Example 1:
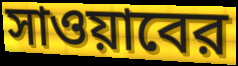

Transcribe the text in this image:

সাওয়াবের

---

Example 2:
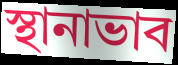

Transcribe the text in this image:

স্থানাভাব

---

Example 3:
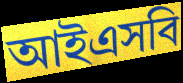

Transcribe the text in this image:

আইএসবি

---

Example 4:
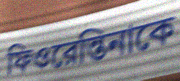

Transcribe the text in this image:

ফিওরেন্তিনাকে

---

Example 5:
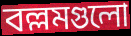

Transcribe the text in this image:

বল্লমগুলো